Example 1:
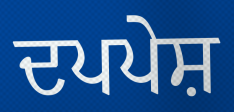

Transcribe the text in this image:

ਦਪਪੇਸ਼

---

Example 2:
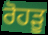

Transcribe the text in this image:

ਰੋਹੜੂ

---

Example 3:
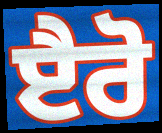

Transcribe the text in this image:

ੲੈਰੋ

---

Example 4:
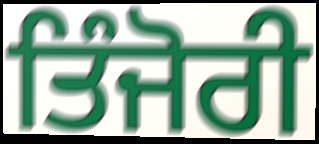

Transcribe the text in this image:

ਤਿੰਜੋਰੀ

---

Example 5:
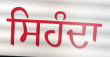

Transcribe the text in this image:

ਸਿਹੰਦਾ